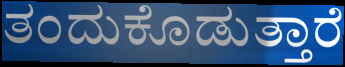
ತಂದುಕೊಡುತ್ತಾರೆ